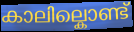
കാലില്കൊണ്ട്